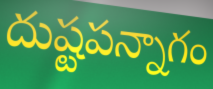
దుష్టపన్నాగం